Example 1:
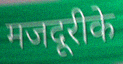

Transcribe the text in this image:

मजदूरीके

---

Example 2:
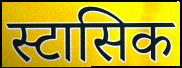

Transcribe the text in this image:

स्टासिक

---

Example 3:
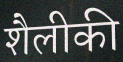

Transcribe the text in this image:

शैलीकी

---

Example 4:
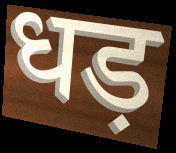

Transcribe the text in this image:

धड़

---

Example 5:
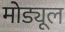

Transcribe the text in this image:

मोड्यूल